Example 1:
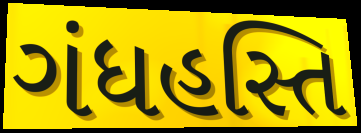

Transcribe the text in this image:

ગંધહસ્તિ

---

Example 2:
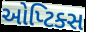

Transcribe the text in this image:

ઓપ્ટિક્સ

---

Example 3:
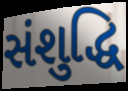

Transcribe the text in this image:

સંશુદ્ધિ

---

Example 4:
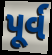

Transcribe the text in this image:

પૂર્વ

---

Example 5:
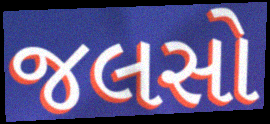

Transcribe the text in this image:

જલસો